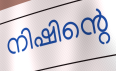
നിഷിന്റെ